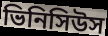
ভিনিসিউস